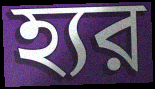
হ্যর